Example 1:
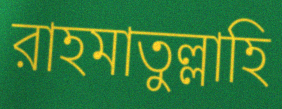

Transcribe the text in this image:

রাহমাতুল্লাহি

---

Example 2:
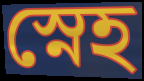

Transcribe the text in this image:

স্নেহ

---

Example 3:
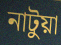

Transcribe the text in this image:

নাটুয়া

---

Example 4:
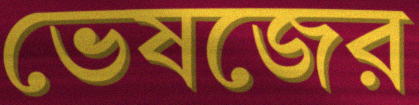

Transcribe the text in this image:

ভেষজের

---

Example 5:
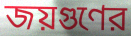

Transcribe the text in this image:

জয়গুণের